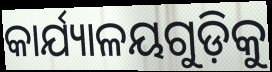
କାର୍ଯ୍ୟାଳୟଗୁଡ଼ିକୁ